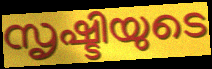
സൃഷ്ടിയുടെ